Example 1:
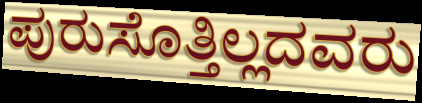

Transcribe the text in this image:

ಪುರುಸೊತ್ತಿಲ್ಲದವರು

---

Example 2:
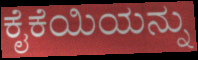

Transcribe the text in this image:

ಕೈಕೆಯಿಯನ್ನು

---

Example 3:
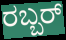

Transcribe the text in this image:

ರಬ್ಬರ್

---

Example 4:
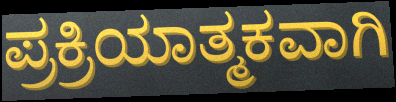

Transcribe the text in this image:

ಪ್ರಕ್ರಿಯಾತ್ಮಕವಾಗಿ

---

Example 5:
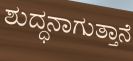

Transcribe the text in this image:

ಶುದ್ಧನಾಗುತ್ತಾನೆ